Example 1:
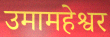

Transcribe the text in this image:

उमामहेश्वर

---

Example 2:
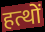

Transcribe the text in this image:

हत्थों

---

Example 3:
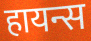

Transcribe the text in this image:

हायन्स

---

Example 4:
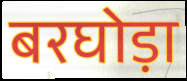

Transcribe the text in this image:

बरघोड़ा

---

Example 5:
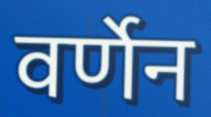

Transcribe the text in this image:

वर्णेन